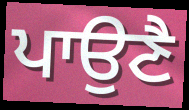
ਪਾਉਣੈ